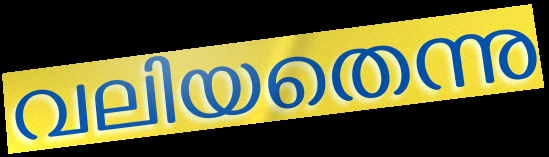
വലിയതെന്നു